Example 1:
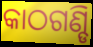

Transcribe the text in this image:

କାଠଗଣ୍ଡି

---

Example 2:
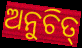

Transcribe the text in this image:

ଅନୁଚିତ୍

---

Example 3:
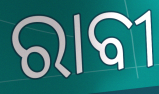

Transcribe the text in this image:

ରାବୀ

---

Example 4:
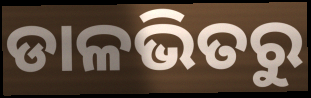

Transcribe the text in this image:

ଡାଳଭିତରୁ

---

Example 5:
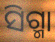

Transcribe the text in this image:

ସିଗ୍ମା